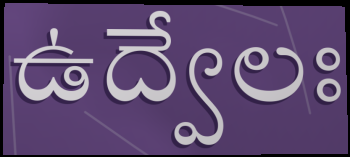
ఉద్వేలః